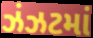
ઝંઝટમાં